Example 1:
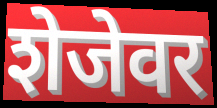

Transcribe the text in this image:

शेजेवर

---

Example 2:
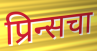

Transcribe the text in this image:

प्रिन्सचा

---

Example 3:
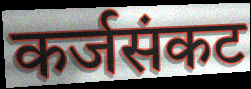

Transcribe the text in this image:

कर्जसंकट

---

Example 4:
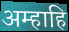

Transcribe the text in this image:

अम्हाहि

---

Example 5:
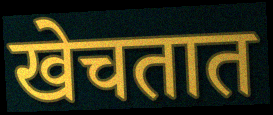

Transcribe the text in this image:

खेचतात